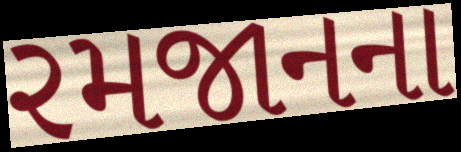
રમજાનના